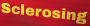
Sclerosing